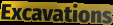
Excavations